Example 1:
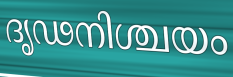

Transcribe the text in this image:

ദൃഢനിശ്ചയം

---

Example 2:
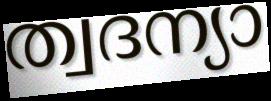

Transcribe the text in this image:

ത്വദന്യാ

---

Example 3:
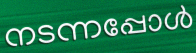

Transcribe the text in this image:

നടന്നപ്പോൾ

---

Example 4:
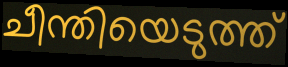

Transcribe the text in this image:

ചീന്തിയെടുത്ത്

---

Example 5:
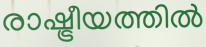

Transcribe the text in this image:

രാഷ്ട്രീയത്തിൽ